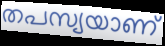
തപസ്യയാണ്